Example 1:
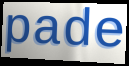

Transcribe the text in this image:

pade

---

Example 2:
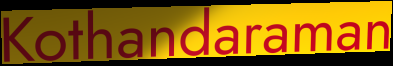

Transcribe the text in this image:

Kothandaraman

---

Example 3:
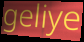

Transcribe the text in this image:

geliye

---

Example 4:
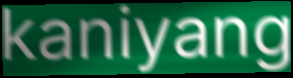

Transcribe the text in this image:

kaniyang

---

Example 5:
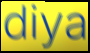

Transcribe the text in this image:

diya